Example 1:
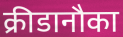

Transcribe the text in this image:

क्रीडानौका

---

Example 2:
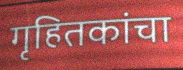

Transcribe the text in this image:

गृहितकांचा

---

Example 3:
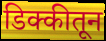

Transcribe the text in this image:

डिक्कीतून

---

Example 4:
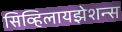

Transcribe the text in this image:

सिव्हिलायझेशन्स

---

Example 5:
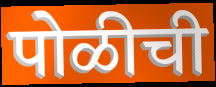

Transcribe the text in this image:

पोळीची